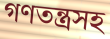
গণতন্ত্রসহ